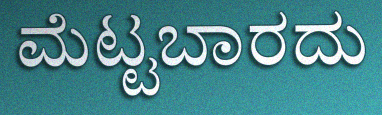
ಮೆಟ್ಟಬಾರದು